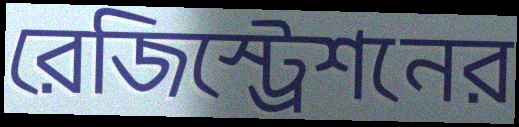
রেজিস্ট্রেশনের